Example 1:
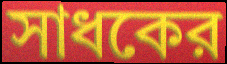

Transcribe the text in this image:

সাধকের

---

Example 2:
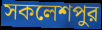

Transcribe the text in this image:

সকলেশপুর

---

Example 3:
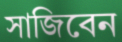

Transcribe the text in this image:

সাজিবেন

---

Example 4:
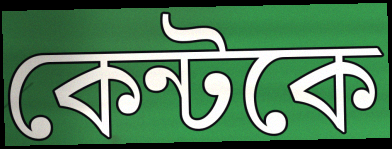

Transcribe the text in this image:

কেন্টকে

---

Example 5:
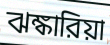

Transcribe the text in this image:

ঝঙ্কারিয়া